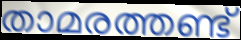
താമരത്തണ്ട്